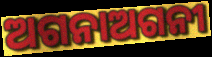
ଅଗନାଅଗନୀ